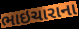
ભાઇચારાના